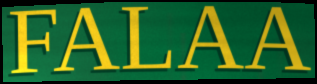
FALAA